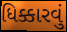
ધિક્કારવું